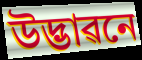
উদ্ভাৱনে